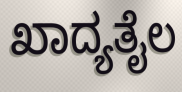
ಖಾದ್ಯತೈಲ